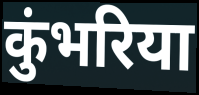
कुंभरिया